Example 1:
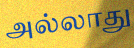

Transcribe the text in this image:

அல்லாது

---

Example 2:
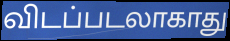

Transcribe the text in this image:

விடப்படலாகாது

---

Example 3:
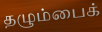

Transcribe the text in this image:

தழும்பைக்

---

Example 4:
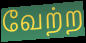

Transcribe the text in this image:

வேற்ற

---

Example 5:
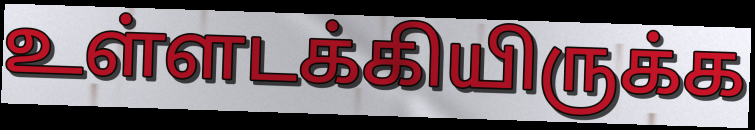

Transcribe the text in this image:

உள்ளடக்கியிருக்க